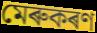
মেৰুকৰণ